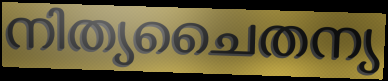
നിത്യചൈതന്യ